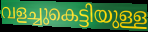
വളച്ചുകെട്ടിയുള്ള